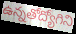
ఉన్నతోద్యోగిని